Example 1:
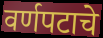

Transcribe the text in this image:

वर्णपटाचे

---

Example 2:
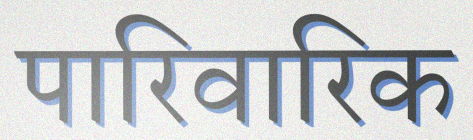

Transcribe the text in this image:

पारिवारिक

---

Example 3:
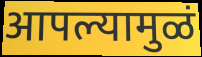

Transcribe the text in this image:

आपल्यामुळं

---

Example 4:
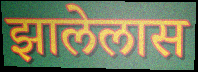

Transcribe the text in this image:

झालेलास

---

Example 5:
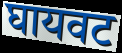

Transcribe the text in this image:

घायवट